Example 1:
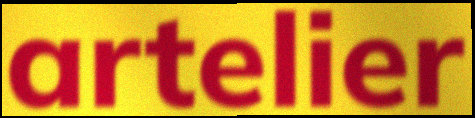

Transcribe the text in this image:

artelier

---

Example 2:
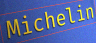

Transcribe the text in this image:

Michelin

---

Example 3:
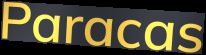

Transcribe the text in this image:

Paracas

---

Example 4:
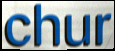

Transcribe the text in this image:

chur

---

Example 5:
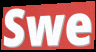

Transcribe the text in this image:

Swe